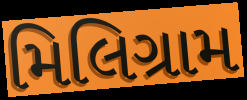
મિલિગ્રામ